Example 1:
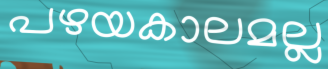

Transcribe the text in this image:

പഴയകാലമല്ല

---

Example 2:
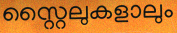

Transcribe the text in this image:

സ്റ്റൈലുകളാലും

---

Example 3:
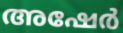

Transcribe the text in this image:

അഷേർ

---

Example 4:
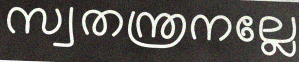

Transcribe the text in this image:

സ്വതന്ത്രനല്ലേ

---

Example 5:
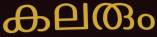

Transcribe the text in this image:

കലരും